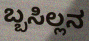
ಬ್ಬಸಿಲ್ಲನ